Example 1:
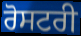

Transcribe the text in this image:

ਰੋਸਟਰੀ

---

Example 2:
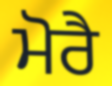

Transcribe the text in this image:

ਮੋਰੈ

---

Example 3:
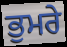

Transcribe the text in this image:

ਭੁਮਰੇ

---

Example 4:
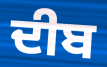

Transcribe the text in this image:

ਦੀਬ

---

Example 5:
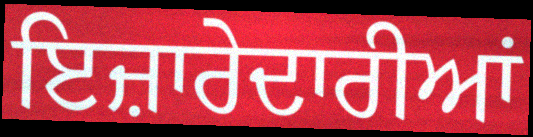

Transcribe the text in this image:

ਇਜ਼ਾਰੇਦਾਰੀਆਂ